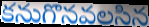
కనుగొనవలసిన